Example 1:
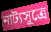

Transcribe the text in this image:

নাট্যসূত্রে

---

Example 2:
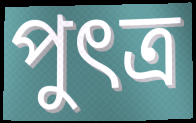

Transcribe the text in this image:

পুৎত্র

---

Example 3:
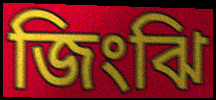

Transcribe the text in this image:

জিংঝি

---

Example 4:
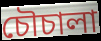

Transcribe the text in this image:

চৌচালা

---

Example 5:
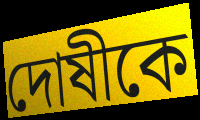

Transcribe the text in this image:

দোষীকে